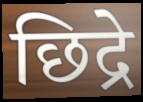
छिद्रे